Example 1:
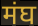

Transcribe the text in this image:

मंघ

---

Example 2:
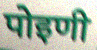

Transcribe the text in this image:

पोइणी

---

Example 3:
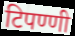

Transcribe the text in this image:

टिपण्णी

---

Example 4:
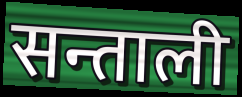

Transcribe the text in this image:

सन्ताली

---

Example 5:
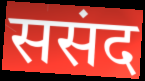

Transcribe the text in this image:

ससंद